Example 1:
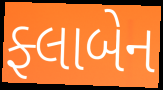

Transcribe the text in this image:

ફ્લાબેન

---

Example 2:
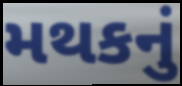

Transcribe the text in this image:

મથકનું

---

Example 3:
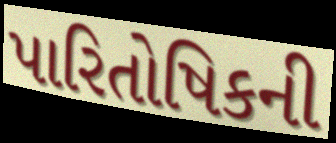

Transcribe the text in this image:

પારિતોષિકની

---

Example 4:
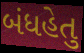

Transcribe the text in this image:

બંધહેતુ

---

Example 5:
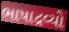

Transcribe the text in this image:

ભાષાદ્રવ્યો